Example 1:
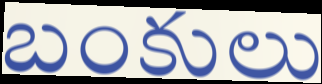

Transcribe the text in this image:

బంకులు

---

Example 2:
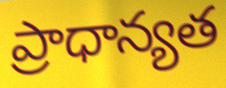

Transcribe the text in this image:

ప్రాధాన్యత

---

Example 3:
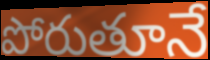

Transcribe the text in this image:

పోరుతూనే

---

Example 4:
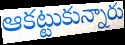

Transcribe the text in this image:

ఆకట్టుకున్నారు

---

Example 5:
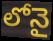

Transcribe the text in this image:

లోనై